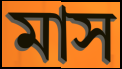
মাস